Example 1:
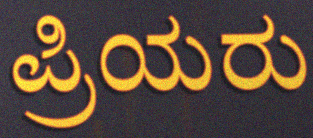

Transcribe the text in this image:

ಪ್ರಿಯರು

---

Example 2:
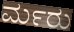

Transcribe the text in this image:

ರ್ಮರು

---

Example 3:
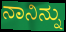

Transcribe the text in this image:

ನಾನಿನ್ನು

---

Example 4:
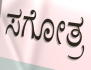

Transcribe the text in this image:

ಸಗೋತ್ರ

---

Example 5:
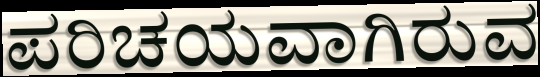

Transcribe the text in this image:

ಪರಿಚಯವಾಗಿರುವ